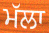
ਮੱਲਾ